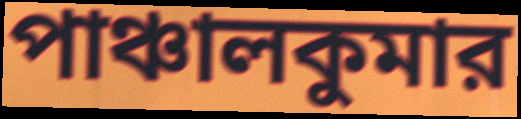
পাঞ্চালকুমার